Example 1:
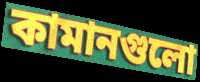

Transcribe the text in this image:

কামানগুলো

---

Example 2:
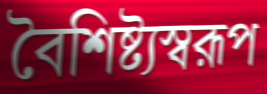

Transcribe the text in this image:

বৈশিষ্ট্যস্বরূপ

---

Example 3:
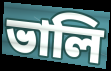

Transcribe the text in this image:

ভালি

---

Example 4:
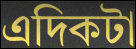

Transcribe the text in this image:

এদিকটা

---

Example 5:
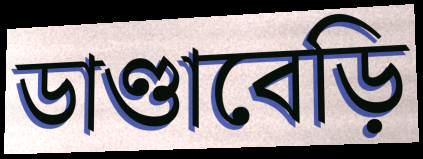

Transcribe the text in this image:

ডাণ্ডাবেড়ি